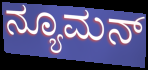
ನ್ಯೂಮನ್